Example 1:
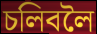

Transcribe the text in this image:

চলিবলৈ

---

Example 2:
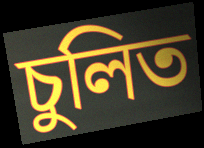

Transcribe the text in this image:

চুলিত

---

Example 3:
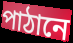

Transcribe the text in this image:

পাঠানে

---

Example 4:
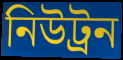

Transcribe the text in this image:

নিউট্ৰন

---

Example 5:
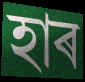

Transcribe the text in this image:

হাৰ